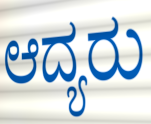
ಆದ್ಯರು